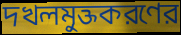
দখলমুক্তকরণের